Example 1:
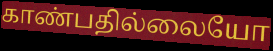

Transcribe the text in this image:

காண்பதில்லையோ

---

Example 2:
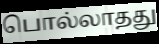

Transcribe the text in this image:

பொல்லாதது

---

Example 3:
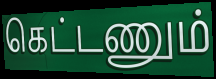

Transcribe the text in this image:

கெட்டணும்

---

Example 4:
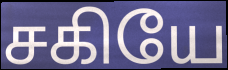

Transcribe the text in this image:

சகியே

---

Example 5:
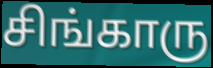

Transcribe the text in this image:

சிங்காரு